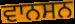
ਵਾਨਸਨ